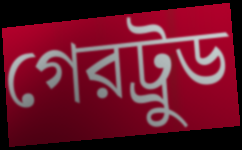
গেরট্রুড